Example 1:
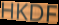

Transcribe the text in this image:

HKDF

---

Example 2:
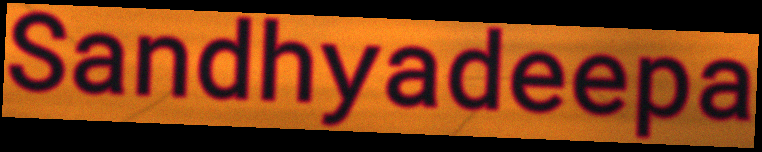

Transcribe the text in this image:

Sandhyadeepa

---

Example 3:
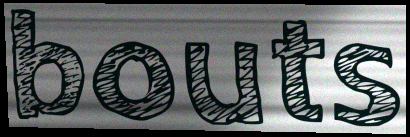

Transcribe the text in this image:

bouts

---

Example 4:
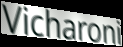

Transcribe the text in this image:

Vicharoni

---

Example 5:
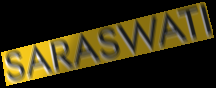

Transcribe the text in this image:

SARASWATI